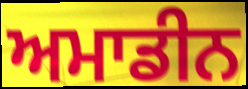
ਅਮਾਡੀਨ